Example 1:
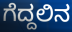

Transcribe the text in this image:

ಗೆದ್ದಲಿನ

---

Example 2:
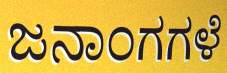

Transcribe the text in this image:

ಜನಾಂಗಗಳೆ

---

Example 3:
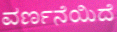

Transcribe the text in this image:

ವರ್ಣನೆಯಿದೆ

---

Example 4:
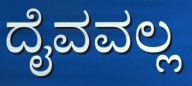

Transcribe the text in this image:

ದೈವವಲ್ಲ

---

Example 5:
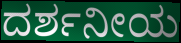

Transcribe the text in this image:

ದರ್ಶನೀಯ